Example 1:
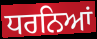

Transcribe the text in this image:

ਧਰਨਿਆਂ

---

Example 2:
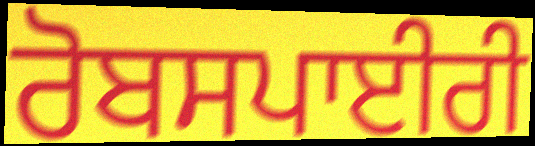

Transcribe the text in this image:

ਰੋਬਸਪਾਈਰੀ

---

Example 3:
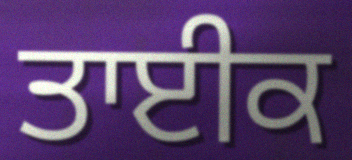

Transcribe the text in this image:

ਤਾਈਕ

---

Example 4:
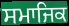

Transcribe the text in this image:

ਸਮਾਜਿਕ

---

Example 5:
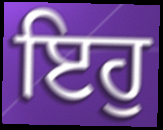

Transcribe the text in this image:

ਇਹੁ